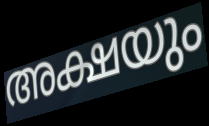
അക്ഷയും